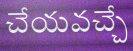
చేయవచ్చే